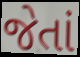
જેતાં